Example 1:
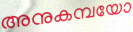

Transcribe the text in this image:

അനുകമ്പയോ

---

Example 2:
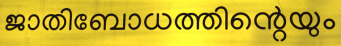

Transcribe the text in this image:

ജാതിബോധത്തിന്റെയും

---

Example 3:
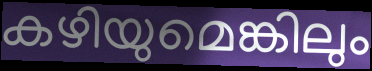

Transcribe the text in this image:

കഴിയുമെങ്കിലും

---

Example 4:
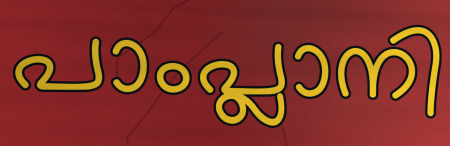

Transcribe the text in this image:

പാംപ്ലാനി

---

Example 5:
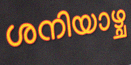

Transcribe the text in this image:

ശനിയാഴ്ച